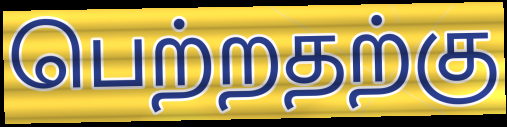
பெற்றதற்கு